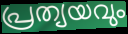
പ്രത്യയവും